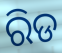
ରିଡ